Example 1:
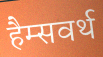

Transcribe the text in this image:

हैम्सवर्थ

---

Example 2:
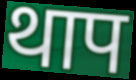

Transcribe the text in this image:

थाप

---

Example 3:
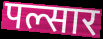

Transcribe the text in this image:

पल्सार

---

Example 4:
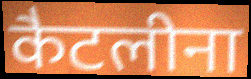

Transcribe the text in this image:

कैटलीना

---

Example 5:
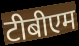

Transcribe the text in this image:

टीबीएम